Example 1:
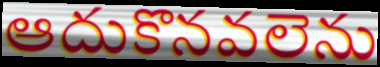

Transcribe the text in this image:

ఆదుకొనవలెను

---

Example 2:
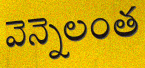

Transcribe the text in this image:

వెన్నెలంత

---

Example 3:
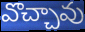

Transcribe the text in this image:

వొచ్చావు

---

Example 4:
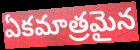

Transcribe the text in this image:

ఏకమాత్రమైన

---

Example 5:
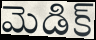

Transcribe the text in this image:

మెడిక్